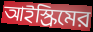
আইস্ক্রিমের